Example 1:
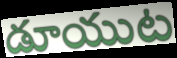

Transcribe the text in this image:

డూయుట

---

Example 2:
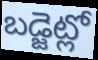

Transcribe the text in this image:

బడ్జెట్లో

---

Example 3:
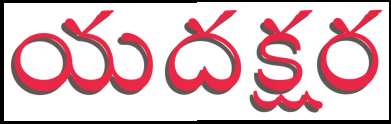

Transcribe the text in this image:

యదక్షర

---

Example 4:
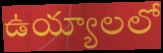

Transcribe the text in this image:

ఉయ్యాలలో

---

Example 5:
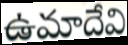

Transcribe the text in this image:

ఉమాదేవి